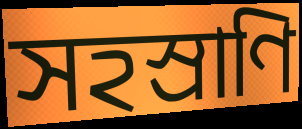
সহস্রাণি